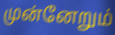
முன்னேறும்